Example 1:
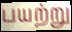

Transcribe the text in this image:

பயற்று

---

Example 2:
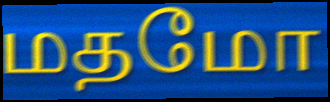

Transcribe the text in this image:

மதமோ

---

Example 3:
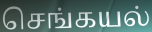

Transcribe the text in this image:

செங்கயல்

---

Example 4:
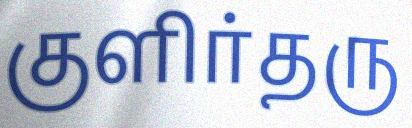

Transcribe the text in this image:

குளிர்தரு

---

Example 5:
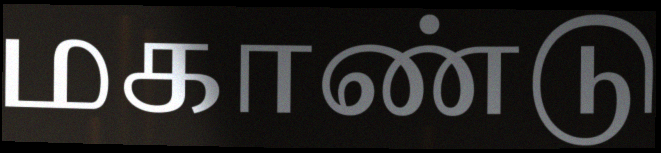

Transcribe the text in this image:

மகாண்டு